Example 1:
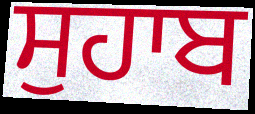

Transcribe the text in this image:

ਸੁਹਾਬ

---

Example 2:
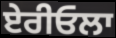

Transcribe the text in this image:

ਏਰੀਓਲਾ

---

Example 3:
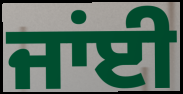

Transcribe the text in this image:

ਜਾਂਈ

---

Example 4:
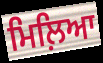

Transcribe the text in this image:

ਮਿਲ਼ਿਆ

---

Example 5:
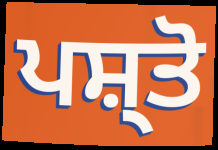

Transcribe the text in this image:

ਪਸ਼੍ਤੋ